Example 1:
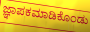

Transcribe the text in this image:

ಜ್ಞಾಪಕಮಾಡಿಕೊಂಡು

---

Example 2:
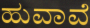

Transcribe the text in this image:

ಹುವಾವೆ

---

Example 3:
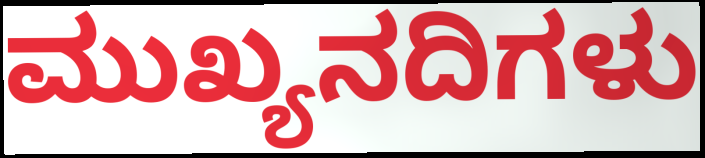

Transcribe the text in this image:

ಮುಖ್ಯನದಿಗಳು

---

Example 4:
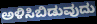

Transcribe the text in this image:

ಅಳಿಸಿಬಿಡುವುದು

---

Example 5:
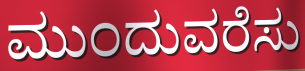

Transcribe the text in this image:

ಮುಂದುವರೆಸು